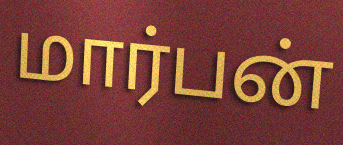
மார்பன்